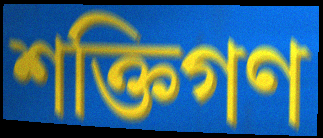
শক্তিগণ